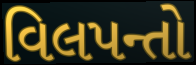
વિલપન્તો